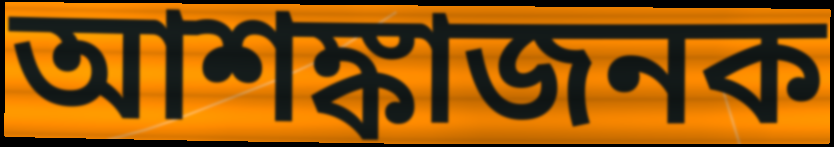
আশঙ্কাজনক